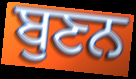
ਬੁਣਨ